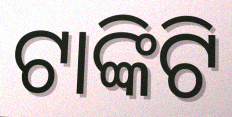
ଟାଙ୍କିଟି